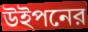
উইপনের